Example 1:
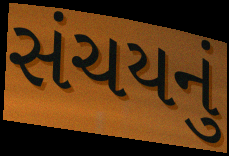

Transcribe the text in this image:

સંચયનું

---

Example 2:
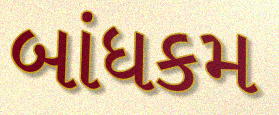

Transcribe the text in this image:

બાંધકમ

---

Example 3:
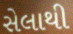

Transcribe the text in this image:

સેલાથી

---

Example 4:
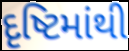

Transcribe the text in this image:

દૃષ્ટિમાંથી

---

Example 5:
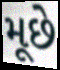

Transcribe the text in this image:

મૂછે